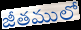
జీతములో